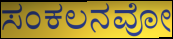
ಸಂಕಲನವೋ